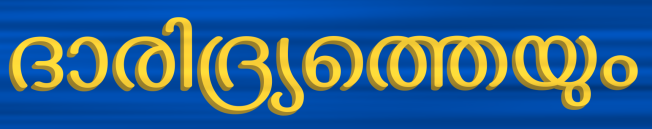
ദാരിദ്ര്യത്തെയും